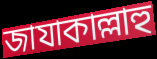
জাযাকাল্লাহু